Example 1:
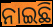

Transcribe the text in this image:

ନାଇଛି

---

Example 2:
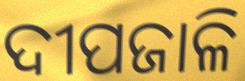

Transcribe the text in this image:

ଦୀପଜାଳି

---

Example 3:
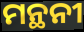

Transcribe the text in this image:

ମନ୍ଥନୀ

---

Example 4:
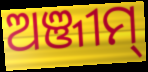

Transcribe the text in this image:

ଅଞ୍ଜୀମ୍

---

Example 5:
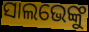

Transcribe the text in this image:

ସାଲଭେଙ୍କୁ